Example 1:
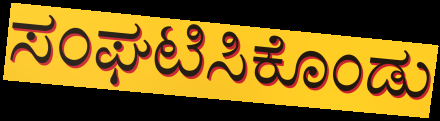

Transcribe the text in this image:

ಸಂಘಟಿಸಿಕೊಂಡು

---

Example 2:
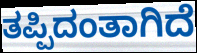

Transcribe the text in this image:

ತಪ್ಪಿದಂತಾಗಿದೆ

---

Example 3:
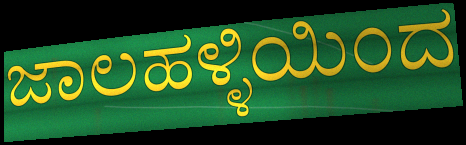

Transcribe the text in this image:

ಜಾಲಹಳ್ಳಿಯಿಂದ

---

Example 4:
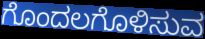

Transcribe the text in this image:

ಗೊಂದಲಗೊಳಿಸುವ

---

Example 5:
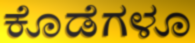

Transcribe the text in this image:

ಕೊಡೆಗಳೂ